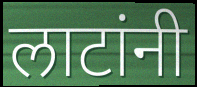
लाटांनी